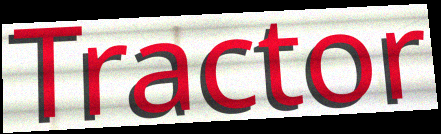
Tractor